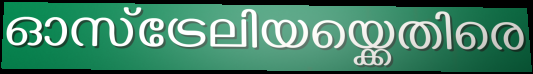
ഓസ്ട്രേലിയയ്ക്കെതിരെ